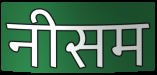
नीसम